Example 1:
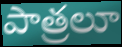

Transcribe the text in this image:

పాత్రలూ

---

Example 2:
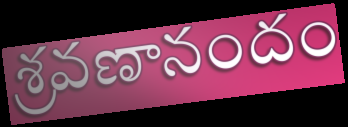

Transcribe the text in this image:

శ్రవణానందం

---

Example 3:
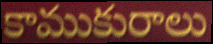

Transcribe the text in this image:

కాముకురాలు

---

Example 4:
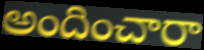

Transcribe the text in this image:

అందించారా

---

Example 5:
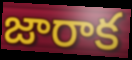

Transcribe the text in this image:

జారాక